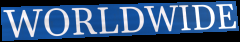
WORLDWIDE